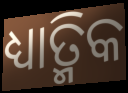
ଧ୍ୟାତ୍ମିକ